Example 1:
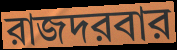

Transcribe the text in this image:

রাজদরবার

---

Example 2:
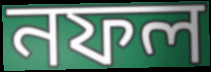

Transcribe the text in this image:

নফল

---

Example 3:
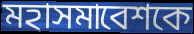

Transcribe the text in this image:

মহাসমাবেশকে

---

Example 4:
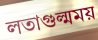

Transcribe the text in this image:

লতাগুল্মময়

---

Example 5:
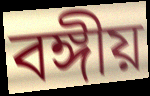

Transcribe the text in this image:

বঙ্গীয়